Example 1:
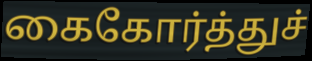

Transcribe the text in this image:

கைகோர்த்துச்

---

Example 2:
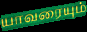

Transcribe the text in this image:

யாவரையும்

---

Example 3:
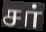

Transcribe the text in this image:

சர்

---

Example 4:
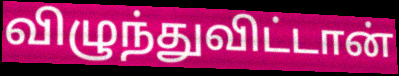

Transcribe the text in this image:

விழுந்துவிட்டான்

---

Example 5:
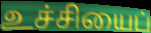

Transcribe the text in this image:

உச்சியைப்